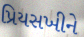
પ્રિયસખીને